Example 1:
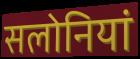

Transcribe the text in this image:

सलोनियां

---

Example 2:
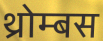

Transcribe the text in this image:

थ्रोम्बस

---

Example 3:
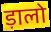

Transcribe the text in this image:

ड़ालो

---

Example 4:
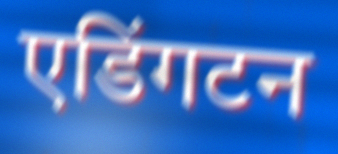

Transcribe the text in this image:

एडिंगटन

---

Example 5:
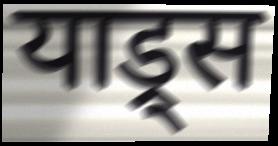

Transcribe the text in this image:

याड्र्स